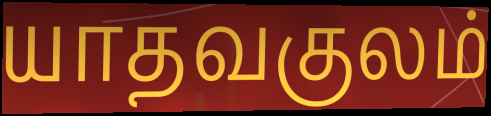
யாதவகுலம்